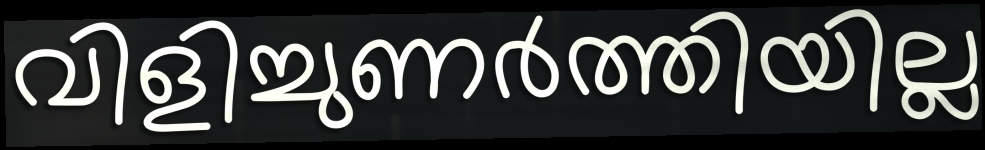
വിളിച്ചുണർത്തിയില്ല